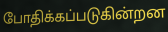
போதிக்கப்படுகின்றன